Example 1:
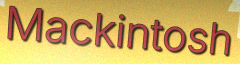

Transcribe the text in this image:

Mackintosh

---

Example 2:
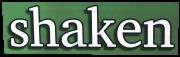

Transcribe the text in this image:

shaken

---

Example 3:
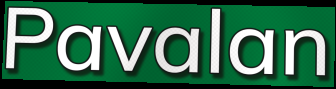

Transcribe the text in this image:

Pavalan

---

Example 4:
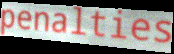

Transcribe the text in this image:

penalties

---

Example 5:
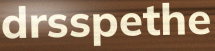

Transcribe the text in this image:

drsspethe